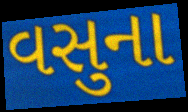
વસુના